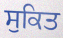
ਸੁਕਿਤ